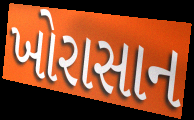
ખોરાસાન